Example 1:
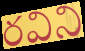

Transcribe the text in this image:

రవిని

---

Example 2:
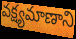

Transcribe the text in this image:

వక్ష్యమాణాని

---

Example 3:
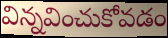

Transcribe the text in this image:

విన్నవించుకోవడం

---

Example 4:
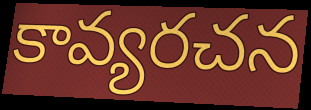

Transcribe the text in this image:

కావ్యరచన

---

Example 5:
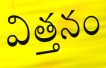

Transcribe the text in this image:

విత్తనం